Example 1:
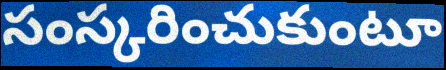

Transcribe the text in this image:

సంస్కరించుకుంటూ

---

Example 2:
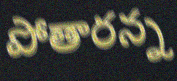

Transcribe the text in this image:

పోతారన్న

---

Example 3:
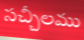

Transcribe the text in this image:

సచ్చీలము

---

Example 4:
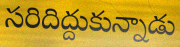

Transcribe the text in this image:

సరిదిద్దుకున్నాడు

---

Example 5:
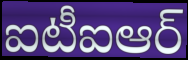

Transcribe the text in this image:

ఐటీఐఆర్